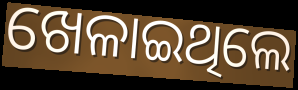
ଖେଳାଇଥିଲେ